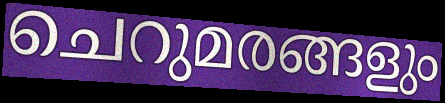
ചെറുമരങ്ങളും